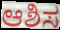
ಆಶಿಸ